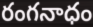
రంగనాధం